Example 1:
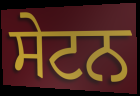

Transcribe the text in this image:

ਸੇਟਨ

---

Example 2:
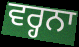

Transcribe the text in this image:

ਵਰ੍ਹਨਾ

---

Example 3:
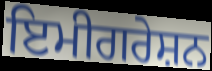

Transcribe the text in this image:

ਇਮੀਗਰੇਸ਼ਨ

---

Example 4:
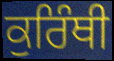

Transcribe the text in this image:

ਕੁਰਿੰਥੀ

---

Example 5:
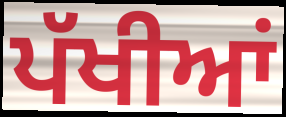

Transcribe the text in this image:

ਪੱਖੀਆਂ